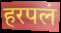
हरपलं